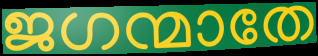
ജഗന്മാതേ